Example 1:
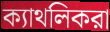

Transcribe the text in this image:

ক্যাথলিকরা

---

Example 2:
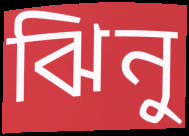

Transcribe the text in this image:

ঝিনু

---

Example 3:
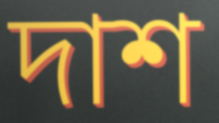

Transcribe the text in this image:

দাশ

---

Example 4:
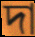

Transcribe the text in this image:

দা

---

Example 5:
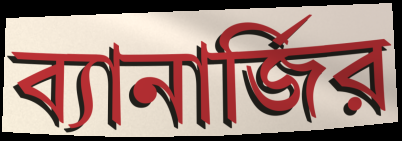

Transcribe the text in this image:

ব্যানার্জির